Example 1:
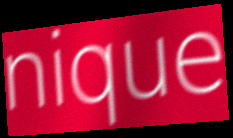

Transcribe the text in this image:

nique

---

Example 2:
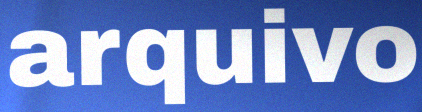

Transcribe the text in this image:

arquivo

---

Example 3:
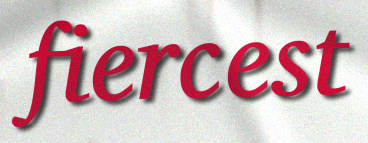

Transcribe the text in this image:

fiercest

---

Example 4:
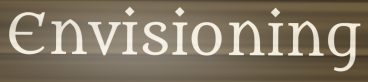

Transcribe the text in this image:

Envisioning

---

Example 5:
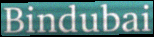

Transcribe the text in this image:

Bindubai